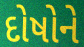
દોષોને